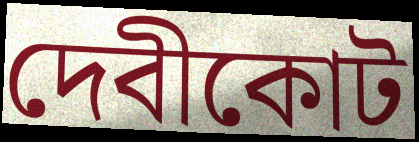
দেবীকোট